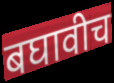
बघावीच